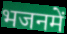
भजनमें